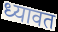
ध्यावत